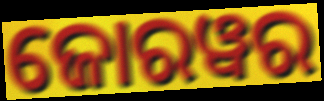
ଜୋରୱର